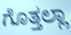
ಗೊತ್ತಲ್ಲಾ